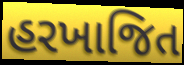
હરખાજિત